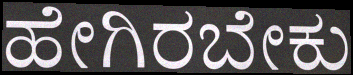
ಹೇಗಿರಬೇಕು